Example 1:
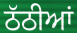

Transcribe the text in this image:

ਠੱਠੀਆਂ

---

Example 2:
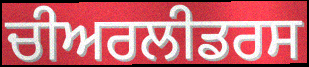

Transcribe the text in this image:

ਚੀਅਰਲੀਡਰਸ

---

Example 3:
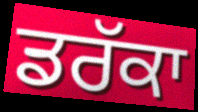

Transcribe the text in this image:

ਡਰੱਕਾ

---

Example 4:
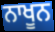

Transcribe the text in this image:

ਨਾਖੂਨ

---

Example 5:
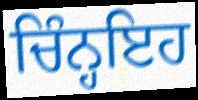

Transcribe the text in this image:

ਚਿੰਨ੍ਹਇਹ